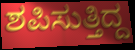
ಶಪಿಸುತ್ತಿದ್ದ